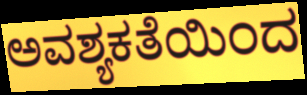
ಅವಶ್ಯಕತೆಯಿಂದ